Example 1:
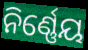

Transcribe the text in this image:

ନିର୍ଣ୍ଣେୟ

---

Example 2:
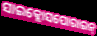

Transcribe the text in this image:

ସାଇକ୍ଲୋସପୋରାଇନ୍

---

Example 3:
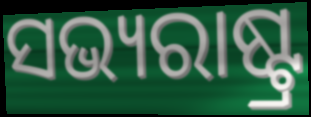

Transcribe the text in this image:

ସଭ୍ୟରାଷ୍ଟ୍ର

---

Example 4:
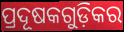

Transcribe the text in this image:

ପ୍ରଦୂଷକଗୁଡ଼ିକର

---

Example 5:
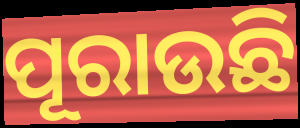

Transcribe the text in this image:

ପୂରାଉଛି